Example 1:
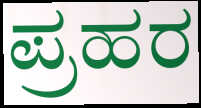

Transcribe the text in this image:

ಪ್ರಹರ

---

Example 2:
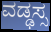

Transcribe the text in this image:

ವಡ್ಢಸ್ಸ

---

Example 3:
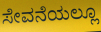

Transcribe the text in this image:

ಸೇವನೆಯಲ್ಲೂ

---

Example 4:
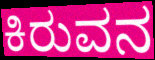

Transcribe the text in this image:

ಕಿರುವನ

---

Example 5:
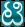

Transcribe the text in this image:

ಟಿ